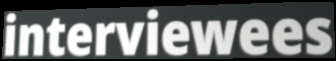
interviewees